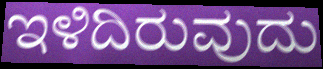
ಇಳಿದಿರುವುದು